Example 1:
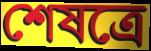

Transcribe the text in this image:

শেষত্রে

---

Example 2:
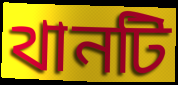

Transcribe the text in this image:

থানটি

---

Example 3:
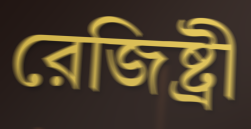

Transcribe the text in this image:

রেজিষ্ট্রী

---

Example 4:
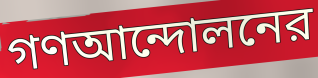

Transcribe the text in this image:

গণআন্দোলনের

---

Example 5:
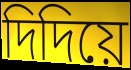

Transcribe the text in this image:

দিদিয়ে